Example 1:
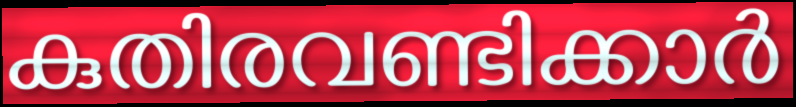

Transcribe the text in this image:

കുതിരവണ്ടിക്കാർ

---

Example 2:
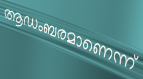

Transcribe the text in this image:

ആഡംബരമാണെന്ന്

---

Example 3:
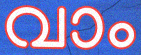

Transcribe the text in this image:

വാം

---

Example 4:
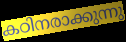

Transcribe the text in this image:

കഠിനരാക്കുന്നു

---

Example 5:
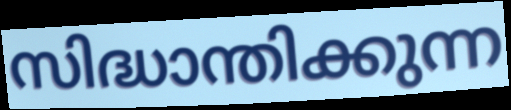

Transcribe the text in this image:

സിദ്ധാന്തിക്കുന്ന